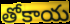
తోకాయ